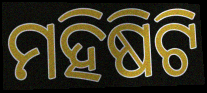
ମହିଷିଟି